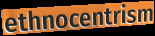
ethnocentrism